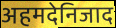
अहमदेनिजाद